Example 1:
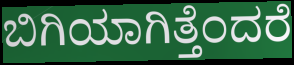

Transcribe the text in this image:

ಬಿಗಿಯಾಗಿತ್ತೆಂದರೆ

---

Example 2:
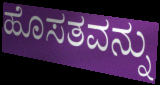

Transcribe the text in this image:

ಹೊಸತವನ್ನು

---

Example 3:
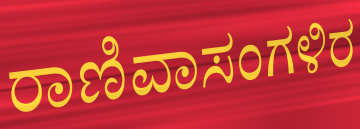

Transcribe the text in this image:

ರಾಣಿವಾಸಂಗಳಿರ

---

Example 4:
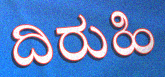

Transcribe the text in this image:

ದಿರುಹಿ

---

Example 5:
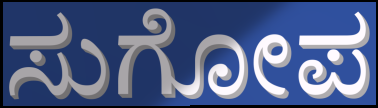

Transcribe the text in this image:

ಸುಗೋಪ